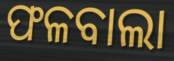
ଫଳବାଲା